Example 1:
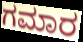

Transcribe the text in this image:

ಗಮಾರ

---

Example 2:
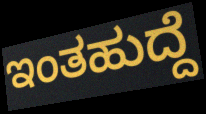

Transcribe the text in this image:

ಇಂತಹುದ್ದೆ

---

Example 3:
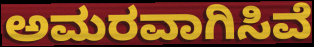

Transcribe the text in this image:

ಅಮರವಾಗಿಸಿವೆ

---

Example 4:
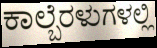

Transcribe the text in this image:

ಕಾಲ್ಬೆರಳುಗಳಲ್ಲಿ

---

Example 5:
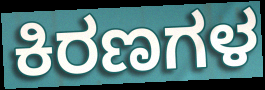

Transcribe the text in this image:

ಕಿರಣಗಳ